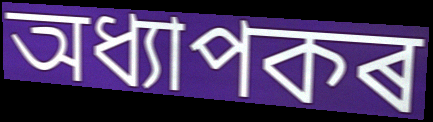
অধ্যাপকৰ